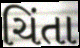
ચિંતા